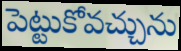
పెట్టుకోవచ్చును